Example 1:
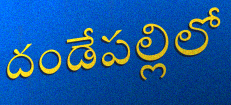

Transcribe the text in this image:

దండేపల్లిలో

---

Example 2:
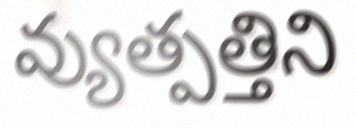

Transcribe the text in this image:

వ్యుత్పత్తిని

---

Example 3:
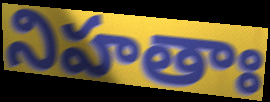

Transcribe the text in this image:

నిహతాః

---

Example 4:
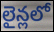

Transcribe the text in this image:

లైన్లలో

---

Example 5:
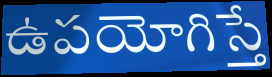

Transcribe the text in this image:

ఉపయోగిస్తే